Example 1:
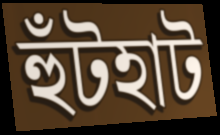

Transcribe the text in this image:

হুঁটহাট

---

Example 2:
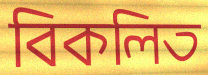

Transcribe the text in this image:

বিকলিত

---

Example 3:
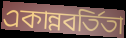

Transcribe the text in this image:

একান্নবর্তিতা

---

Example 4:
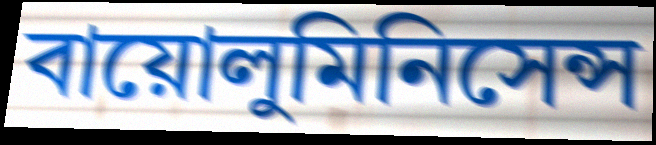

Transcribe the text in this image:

বায়োলুমিনিসেন্স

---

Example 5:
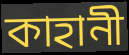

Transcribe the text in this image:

কাহানী